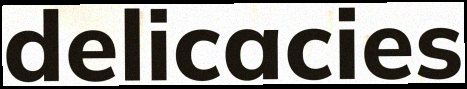
delicacies